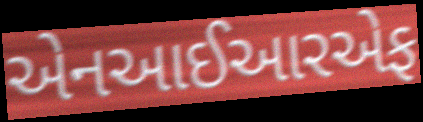
એનઆઈઆરએફ